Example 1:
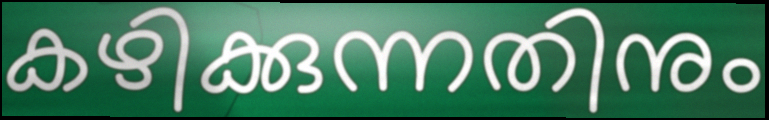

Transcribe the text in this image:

കഴിക്കുന്നതിനും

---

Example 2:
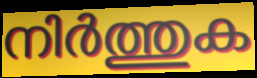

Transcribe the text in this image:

നിർത്തുക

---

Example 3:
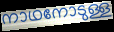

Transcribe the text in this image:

നാഥനോടുള്ള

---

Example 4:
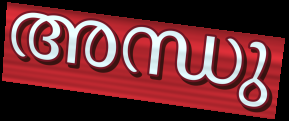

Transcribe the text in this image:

അന്ധു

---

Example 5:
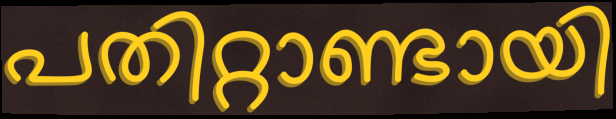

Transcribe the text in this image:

പതിറ്റാണ്ടായി